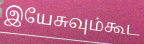
இயேசுவும்கூட